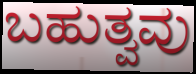
ಬಹುತ್ವವು